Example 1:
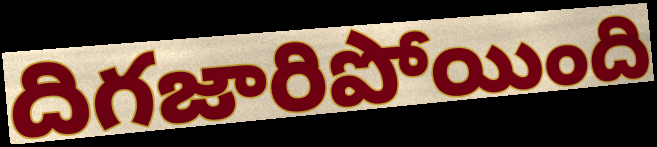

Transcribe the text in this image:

దిగజారిపోయింది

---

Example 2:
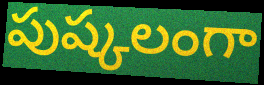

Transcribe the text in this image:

పుష్కలంగా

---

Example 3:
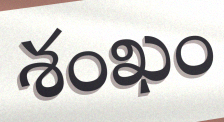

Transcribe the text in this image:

శంఖం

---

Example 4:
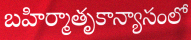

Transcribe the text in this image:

బహిర్మాతృకాన్యాసంలో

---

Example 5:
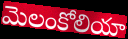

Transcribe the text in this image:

మెలంకోలియా